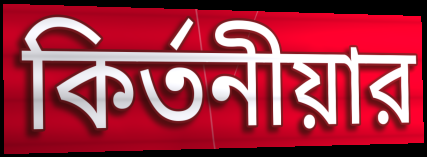
কির্তনীয়ার